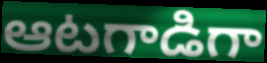
ఆటగాడిగా